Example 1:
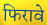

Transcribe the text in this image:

फिरावे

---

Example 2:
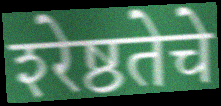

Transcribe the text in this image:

श्रेष्ठतेचे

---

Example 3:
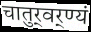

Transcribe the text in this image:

चातुर्वर्ण्यं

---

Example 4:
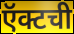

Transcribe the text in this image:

ऍक्टची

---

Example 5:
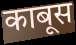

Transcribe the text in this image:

काबूस